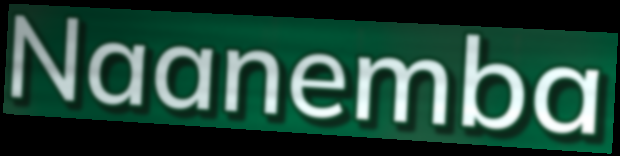
Naanemba